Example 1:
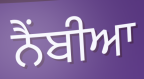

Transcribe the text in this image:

ਨੈਂਬੀਆ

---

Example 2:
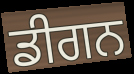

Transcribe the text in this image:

ਡੀਗਨ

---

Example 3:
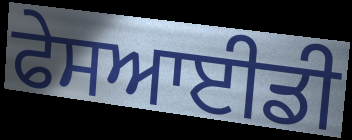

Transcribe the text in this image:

ਫੇਸਆਈਡੀ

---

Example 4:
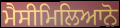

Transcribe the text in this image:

ਮੈਸੀਮਿਲਿਆਨੋ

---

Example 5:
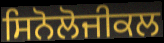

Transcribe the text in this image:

ਸਿਨੋਲੋਜੀਕਲ